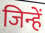
जिन्हें